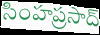
సింహప్రసాద్